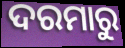
ଦରମାରୁ